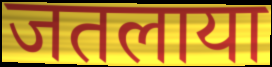
जतलाया